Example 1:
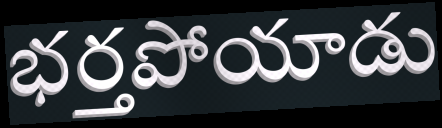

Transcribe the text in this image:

భర్తపోయాడు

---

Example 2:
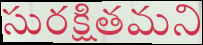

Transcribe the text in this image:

సురక్షితమని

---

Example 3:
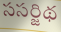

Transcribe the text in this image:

ససర్జిథ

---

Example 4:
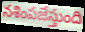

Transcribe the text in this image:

నశింపజేస్తుంది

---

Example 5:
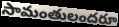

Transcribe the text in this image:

సామంతులందరూ